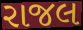
રાજલ